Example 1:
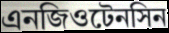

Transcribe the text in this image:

এনজিওটেনসিন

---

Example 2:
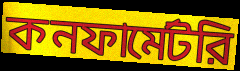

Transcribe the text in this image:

কনফার্মেটরি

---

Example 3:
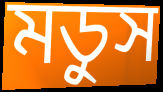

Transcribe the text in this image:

মডুস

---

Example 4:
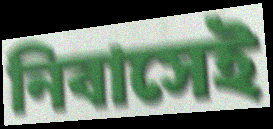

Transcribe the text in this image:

নিবাসেই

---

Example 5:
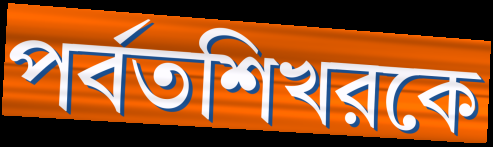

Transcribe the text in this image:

পর্বতশিখরকে